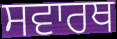
ਸਵਾਰਥ